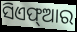
ସିଏଫ୍ଆର